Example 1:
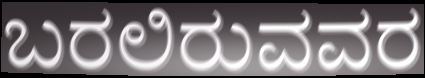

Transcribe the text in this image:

ಬರಲಿರುವವರ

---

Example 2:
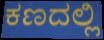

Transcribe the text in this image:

ಕಣದಲ್ಲಿ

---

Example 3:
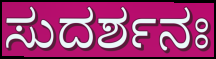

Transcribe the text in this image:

ಸುದರ್ಶನಃ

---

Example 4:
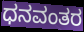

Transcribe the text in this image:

ಧನವಂತರ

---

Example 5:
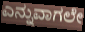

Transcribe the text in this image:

ಎನ್ನುವಾಗಲೇ